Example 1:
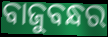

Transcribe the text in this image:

ବାଜୁବନ୍ଧର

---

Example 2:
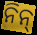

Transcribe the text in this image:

ନିନ୍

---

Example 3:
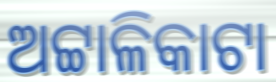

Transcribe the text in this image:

ଅଟ୍ଟାଳିକାଟା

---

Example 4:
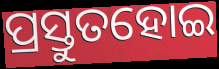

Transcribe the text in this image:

ପ୍ରସ୍ତୁତହୋଇ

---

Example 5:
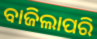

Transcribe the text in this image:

ବାଜିଲାପରି